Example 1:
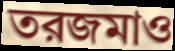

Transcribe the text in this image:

তরজমাও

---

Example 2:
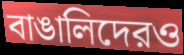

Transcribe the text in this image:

বাঙালিদেরও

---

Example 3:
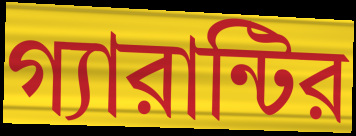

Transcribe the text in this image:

গ্যারান্টির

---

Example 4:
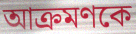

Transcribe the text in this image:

আক্রমণকে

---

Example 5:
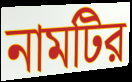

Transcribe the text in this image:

নামটির